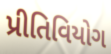
પ્રીતિવિયોગ